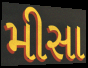
મીસા